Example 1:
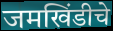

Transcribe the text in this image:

जमखिंडीचे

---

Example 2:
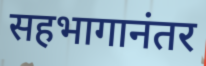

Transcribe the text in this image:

सहभागानंतर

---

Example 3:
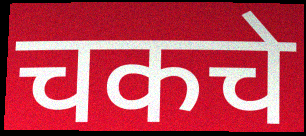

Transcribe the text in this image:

चकचे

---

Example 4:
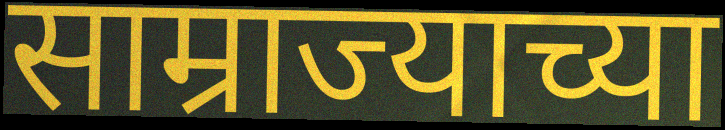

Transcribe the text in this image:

साम्राज्याच्या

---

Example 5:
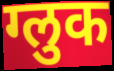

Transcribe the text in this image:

ग्लुक